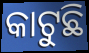
କାଟୁଛି